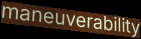
maneuverability